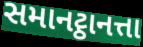
સમાનટ્ઠાનત્તા